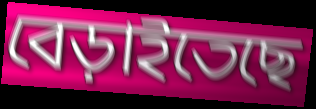
বেড়াইতেছে